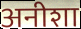
अनीशा